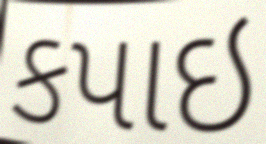
કપાઇ